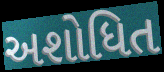
અશોધિત